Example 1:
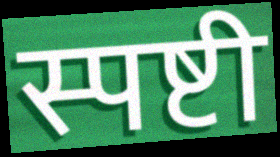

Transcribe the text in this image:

स्पष्टी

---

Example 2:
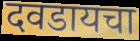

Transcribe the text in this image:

दवडायचा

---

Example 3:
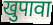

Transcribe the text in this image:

खुपावा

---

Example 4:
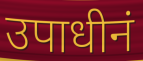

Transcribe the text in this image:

उपाधीनं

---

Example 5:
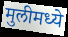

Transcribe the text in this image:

मुलीमध्ये